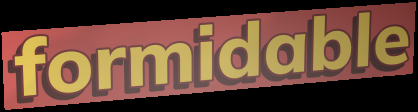
formidable